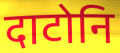
दाटोनि